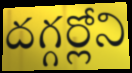
దగ్గర్లోని